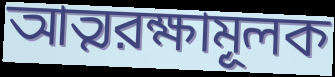
আত্মরক্ষামূলক